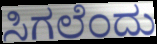
ಸಿಗಲೆಂದು